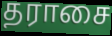
தராசை